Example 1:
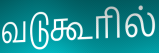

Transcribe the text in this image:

வடுகூரில்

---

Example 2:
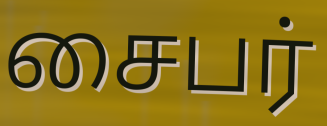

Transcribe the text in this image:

சைபர்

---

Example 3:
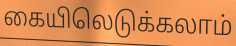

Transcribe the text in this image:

கையிலெடுக்கலாம்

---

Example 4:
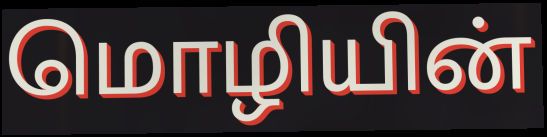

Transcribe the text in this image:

மொழியின்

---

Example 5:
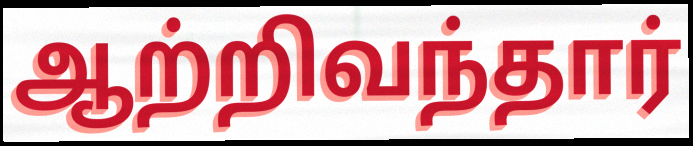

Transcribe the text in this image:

ஆற்றிவந்தார்